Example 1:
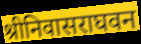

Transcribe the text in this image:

श्रीनिवासराघवन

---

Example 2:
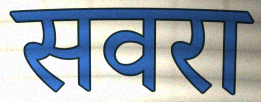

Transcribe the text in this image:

सवरा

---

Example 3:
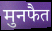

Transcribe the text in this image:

मुनफैत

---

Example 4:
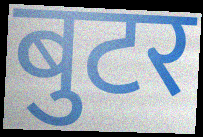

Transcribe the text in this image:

बुटर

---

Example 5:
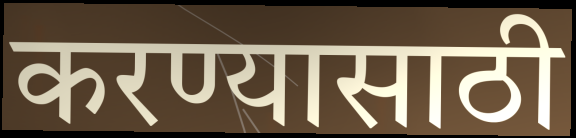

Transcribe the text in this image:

करण्यासाठी